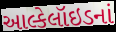
આલ્કેલૉઇડનાં